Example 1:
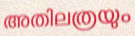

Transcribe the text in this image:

അതിലത്രയും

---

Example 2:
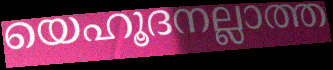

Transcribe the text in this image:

യെഹൂദനല്ലാത്ത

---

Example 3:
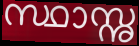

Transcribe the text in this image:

സ്ഥാസ്നു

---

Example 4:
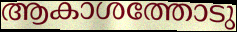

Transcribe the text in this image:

ആകാശത്തോടു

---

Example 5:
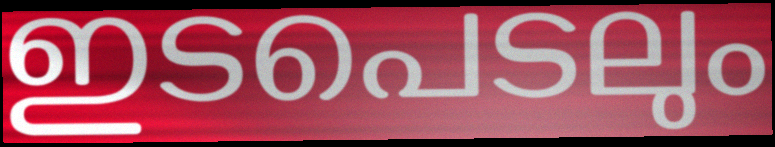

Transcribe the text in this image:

ഇടപെടലും